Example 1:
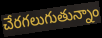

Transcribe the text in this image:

చేరగలుగుతున్నాం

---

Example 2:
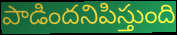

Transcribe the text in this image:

పాడిందనిపిస్తుంది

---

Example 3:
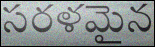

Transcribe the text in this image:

సరళమైన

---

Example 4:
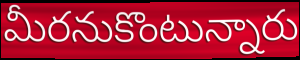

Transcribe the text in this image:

మీరనుకొంటున్నారు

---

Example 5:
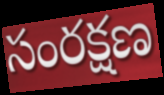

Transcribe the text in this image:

సంరక్షణ